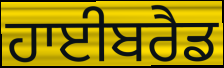
ਹਾਈਬਰੈਡ